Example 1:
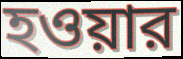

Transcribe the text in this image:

হওয়ার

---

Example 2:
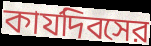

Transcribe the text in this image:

কার্যদিবসের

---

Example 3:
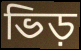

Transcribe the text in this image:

ভিড়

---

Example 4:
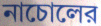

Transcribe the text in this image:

নাচোলের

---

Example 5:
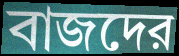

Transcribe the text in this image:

বাজদের